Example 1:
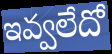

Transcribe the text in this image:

ఇవ్వలేదో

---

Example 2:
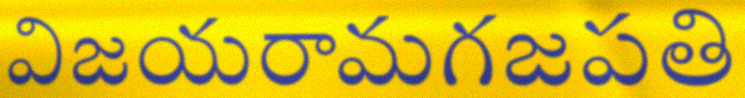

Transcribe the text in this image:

విజయరామగజపతి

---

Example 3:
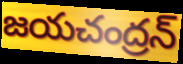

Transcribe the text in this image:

జయచంద్రన్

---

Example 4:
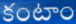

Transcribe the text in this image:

కంటాం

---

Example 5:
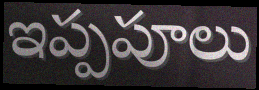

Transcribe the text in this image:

ఇప్పపూలు